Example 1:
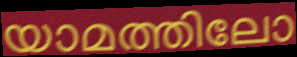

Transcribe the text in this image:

യാമത്തിലോ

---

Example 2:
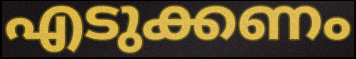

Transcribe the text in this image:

എടുക്കണം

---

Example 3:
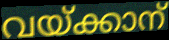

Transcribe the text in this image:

വയ്ക്കാന്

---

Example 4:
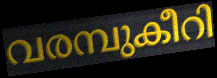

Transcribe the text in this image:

വരമ്പുകീറി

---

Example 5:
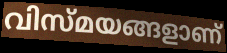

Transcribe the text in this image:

വിസ്മയങ്ങളാണ്